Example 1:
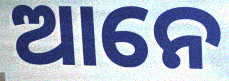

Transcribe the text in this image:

ଆନେ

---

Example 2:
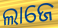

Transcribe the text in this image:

ଲାଜେ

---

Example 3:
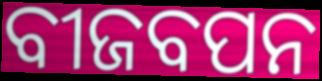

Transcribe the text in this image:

ବୀଜବପନ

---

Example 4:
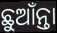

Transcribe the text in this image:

ଛୁଆଁନ୍ତା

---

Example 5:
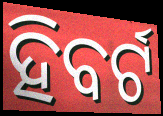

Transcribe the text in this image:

ହିବର୍ଟ